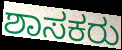
ಶಾಸಕರು